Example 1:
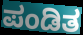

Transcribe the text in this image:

ಪಂಡಿತ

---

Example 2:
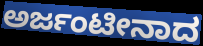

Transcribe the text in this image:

ಅರ್ಜಂಟೀನಾದ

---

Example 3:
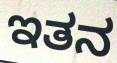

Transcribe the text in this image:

ಇತನ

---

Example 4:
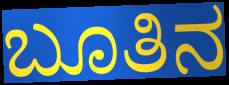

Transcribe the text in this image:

ಬೂತಿನ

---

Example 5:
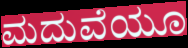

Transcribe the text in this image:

ಮದುವೆಯೂ